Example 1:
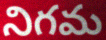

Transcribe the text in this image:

నిగమ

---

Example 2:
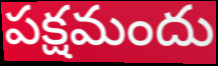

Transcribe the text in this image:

పక్షమందు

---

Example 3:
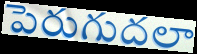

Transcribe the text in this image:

పెరుగుదలా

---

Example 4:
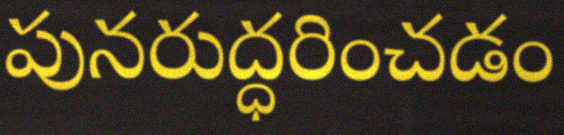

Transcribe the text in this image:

పునరుద్ధరించడం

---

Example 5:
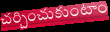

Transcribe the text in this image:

చర్చించుకుంటాం